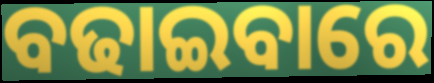
ବଢାଇବାରେ